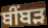
ਬੀੰਬੜ